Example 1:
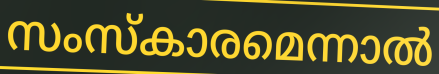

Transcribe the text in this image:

സംസ്കാരമെന്നാൽ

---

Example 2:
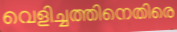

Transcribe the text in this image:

വെളിച്ചത്തിനെതിരെ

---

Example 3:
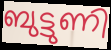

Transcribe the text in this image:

ബുട്ടുണി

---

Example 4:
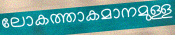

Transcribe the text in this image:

ലോകത്താകമാനമുള്ള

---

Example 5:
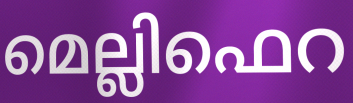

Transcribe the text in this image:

മെല്ലിഫെറ